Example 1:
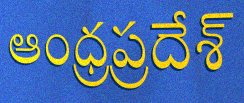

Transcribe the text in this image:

ఆంధ్రప్రదేశ్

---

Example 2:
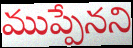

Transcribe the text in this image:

ముప్పేనని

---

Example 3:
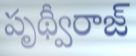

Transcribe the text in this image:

పృథ్వీరాజ్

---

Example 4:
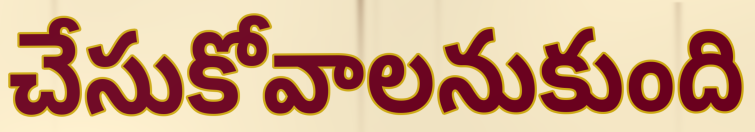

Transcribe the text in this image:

చేసుకోవాలనుకుంది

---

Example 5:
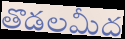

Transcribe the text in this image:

తొడలమీద